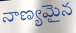
నాణ్యమైన